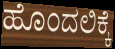
ಹೊಂದಲಿಕ್ಕೆ